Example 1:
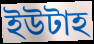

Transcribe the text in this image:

ইউটাহ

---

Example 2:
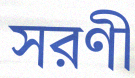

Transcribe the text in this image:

সরণী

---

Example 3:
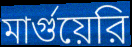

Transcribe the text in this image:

মার্গুয়েরি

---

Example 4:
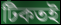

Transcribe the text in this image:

টিকতই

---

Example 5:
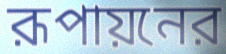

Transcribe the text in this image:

রূপায়নের